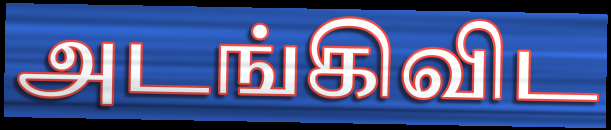
அடங்கிவிட